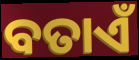
ବତାଏଁ